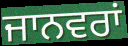
ਜਾਨਵਰਾਂ